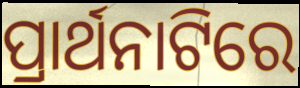
ପ୍ରାର୍ଥନାଟିରେ